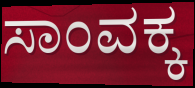
ಸಾಂವಕ್ಕ